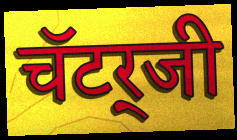
चॅटर्जी